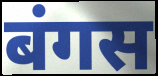
बंगस